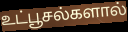
உட்பூசல்களால்